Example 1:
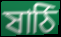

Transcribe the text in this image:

ষাঠি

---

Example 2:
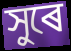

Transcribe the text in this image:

সুৰে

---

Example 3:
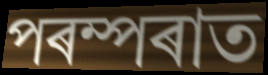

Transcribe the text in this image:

পৰম্পৰাত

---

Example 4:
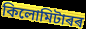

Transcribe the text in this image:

কিলোমিটাৰৰ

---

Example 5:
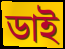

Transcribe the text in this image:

ডাই